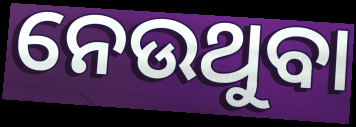
ନେଉଥୁବା